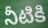
నీటికి